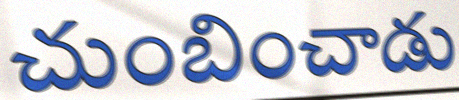
చుంబించాడు